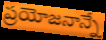
ప్రయోజనాన్నే